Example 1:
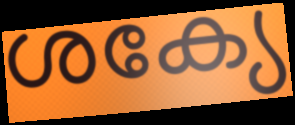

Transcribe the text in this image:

ശക്യേ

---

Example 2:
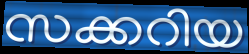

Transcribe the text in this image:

സക്കറിയ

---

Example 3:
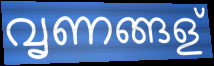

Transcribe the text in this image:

വൃണങ്ങള്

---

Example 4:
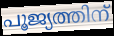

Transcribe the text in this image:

പൂജ്യത്തിന്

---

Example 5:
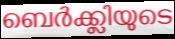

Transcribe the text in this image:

ബെർക്ക്ലിയുടെ